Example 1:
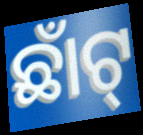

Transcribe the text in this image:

ଛାଁଟ୍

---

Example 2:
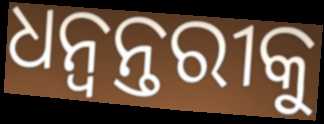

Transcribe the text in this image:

ଧନ୍ବନ୍ତରୀକୁ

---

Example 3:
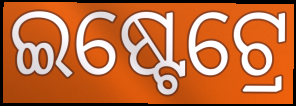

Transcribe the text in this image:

ଇଷ୍ଟେଟ୍ରେ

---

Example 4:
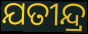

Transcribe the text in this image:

ଯତୀନ୍ଦ୍ର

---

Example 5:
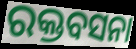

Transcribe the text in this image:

ରକ୍ତବସନା